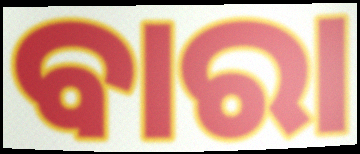
ବାରା